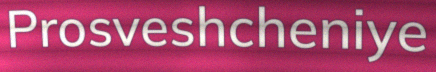
Prosveshcheniye